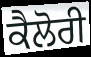
ਕੈਲੋਰੀ